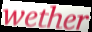
wether